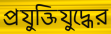
প্রযুক্তিযুদ্ধের